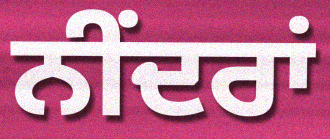
ਨੀਂਦਰਾਂ